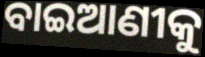
ବାଇଆଣୀକୁ